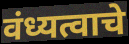
वंध्यत्वाचे